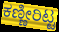
ಕಣ್ಣೀರಿಟ್ಟ